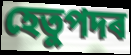
হেতুপদৰ